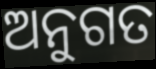
ଅନୁଗତ